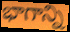
భాగాన్ని